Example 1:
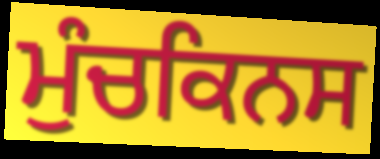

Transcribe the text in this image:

ਮੁੰਚਕਿਨਸ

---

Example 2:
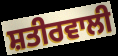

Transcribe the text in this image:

ਸ਼ਤੀਰਵਾਲੀ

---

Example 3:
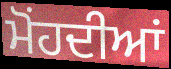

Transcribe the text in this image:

ਮੋਂਹਦੀਆਂ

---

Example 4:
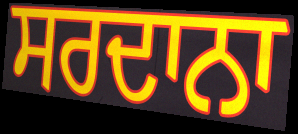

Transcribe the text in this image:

ਸਰਦਾਨਾ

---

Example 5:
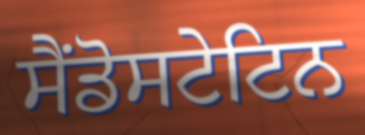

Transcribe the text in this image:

ਸੈਂਡੋਸਟੇਟਿਨ